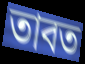
তাবত